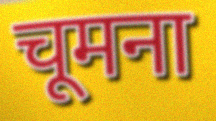
चूमना